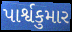
પાર્શ્વકુમાર